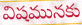
విషమునకు